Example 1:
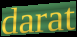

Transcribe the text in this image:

darat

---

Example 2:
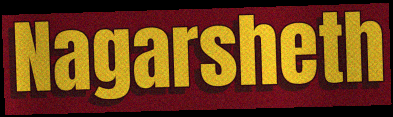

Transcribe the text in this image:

Nagarsheth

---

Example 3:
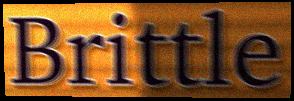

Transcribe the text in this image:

Brittle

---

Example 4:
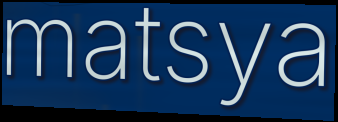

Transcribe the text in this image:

matsya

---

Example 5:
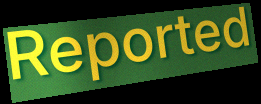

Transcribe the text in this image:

Reported